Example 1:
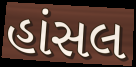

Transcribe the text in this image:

હાંસલ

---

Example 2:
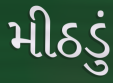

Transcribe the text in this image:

મીઠડું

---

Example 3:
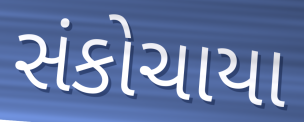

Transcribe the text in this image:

સંકોચાયા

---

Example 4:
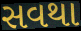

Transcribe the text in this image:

સવથા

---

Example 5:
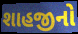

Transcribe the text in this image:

શાહજીનો